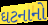
ઘટનાનો